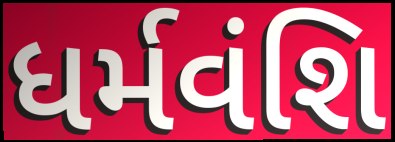
ધર્મવંશિ